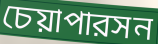
চেয়াপারসন